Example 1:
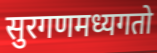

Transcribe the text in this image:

सुरगणमध्यगतो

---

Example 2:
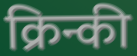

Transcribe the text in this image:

क्रिन्की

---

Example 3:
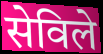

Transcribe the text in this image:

सेविले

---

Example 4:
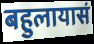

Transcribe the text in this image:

बहुलायासं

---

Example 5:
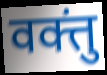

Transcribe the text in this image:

वक्तुं